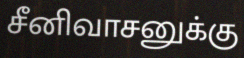
சீனிவாசனுக்கு